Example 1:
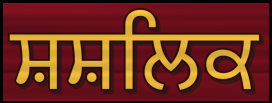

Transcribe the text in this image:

ਸ਼ਸ਼ਲਿਕ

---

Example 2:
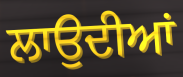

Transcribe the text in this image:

ਲਾਉਦੀਆਂ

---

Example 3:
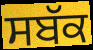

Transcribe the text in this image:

ਸਬੱਕ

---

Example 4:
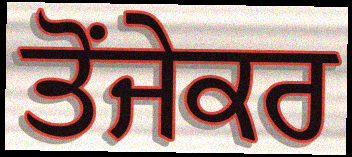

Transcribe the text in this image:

ਤੋਂਜੇਕਰ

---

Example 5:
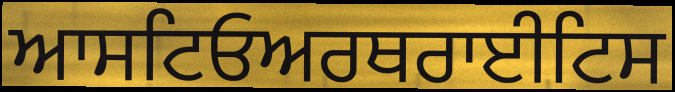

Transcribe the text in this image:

ਆਸਟਿਓਅਰਥਰਾਈਟਿਸ